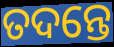
ତଦନ୍ତେ